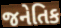
જનેતિક